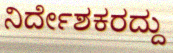
ನಿರ್ದೇಶಕರದ್ದು